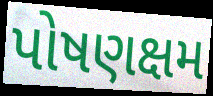
પોષણક્ષમ